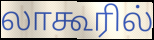
லாகூரில்